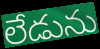
లేడును